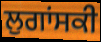
ਲੁਗਾਂਸਕੀ